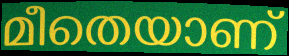
മീതെയാണ്